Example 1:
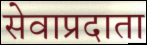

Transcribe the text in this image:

सेवाप्रदाता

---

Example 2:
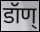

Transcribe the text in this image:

डॉण्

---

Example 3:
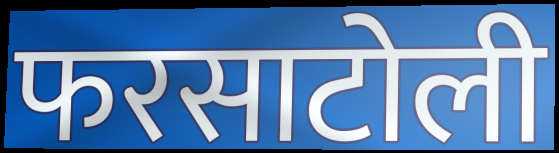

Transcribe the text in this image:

फरसाटोली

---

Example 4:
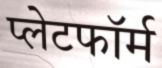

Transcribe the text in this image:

प्लेटफॉर्म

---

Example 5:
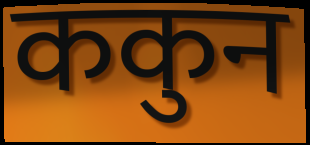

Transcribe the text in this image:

ककुन